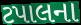
ટપાલના